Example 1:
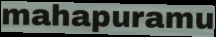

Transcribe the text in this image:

mahapuramu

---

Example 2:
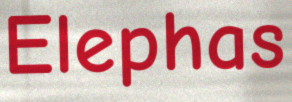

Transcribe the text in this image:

Elephas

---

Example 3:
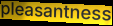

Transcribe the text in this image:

pleasantness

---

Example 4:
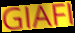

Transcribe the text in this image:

GIAFI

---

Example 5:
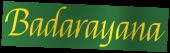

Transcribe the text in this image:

Badarayana